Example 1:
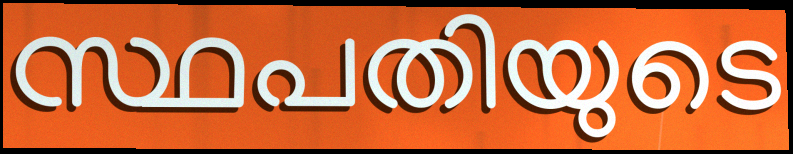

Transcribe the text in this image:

സ്ഥപതിയുടെ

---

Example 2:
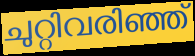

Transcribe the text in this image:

ചുറ്റിവരിഞ്ഞ്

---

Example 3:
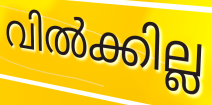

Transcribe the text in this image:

വിൽക്കില്ല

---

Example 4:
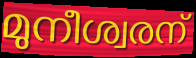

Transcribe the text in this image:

മുനീശ്വരന്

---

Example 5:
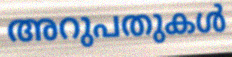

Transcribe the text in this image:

അറുപതുകൾ